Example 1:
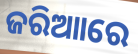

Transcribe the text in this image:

ଜରିଆାରେ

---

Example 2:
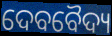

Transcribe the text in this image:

ଦେବବୈଦ୍ୟ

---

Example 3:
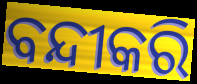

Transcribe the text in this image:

ବନ୍ଦୀକରି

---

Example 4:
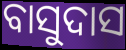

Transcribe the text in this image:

ବାସୁଦାସ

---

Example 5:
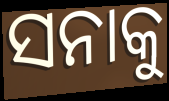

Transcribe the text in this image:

ସନାକୁ